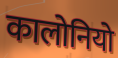
कालोनियो